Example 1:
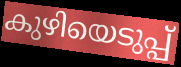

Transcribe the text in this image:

കുഴിയെടുപ്പ്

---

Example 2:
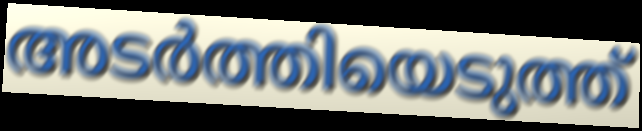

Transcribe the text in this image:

അടർത്തിയെടുത്ത്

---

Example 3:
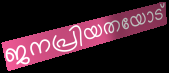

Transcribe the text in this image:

ജനപ്രിയതയോട്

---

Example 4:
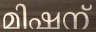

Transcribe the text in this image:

മിഷന്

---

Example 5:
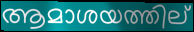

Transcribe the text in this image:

ആമാശയത്തില്